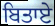
ਬਿਤਾਏ